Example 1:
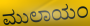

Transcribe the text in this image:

ಮುಲಾಯಂ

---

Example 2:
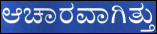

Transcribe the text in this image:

ಆಚಾರವಾಗಿತ್ತು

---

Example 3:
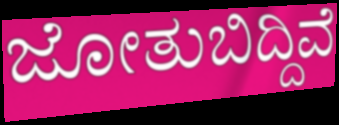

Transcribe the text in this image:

ಜೋತುಬಿದ್ದಿವೆ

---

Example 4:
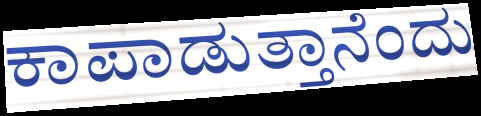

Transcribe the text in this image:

ಕಾಪಾಡುತ್ತಾನೆಂದು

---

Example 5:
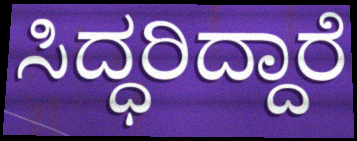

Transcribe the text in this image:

ಸಿದ್ಧರಿದ್ದಾರೆ